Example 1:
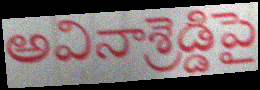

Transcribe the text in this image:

అవినాశ్రెడ్డిపై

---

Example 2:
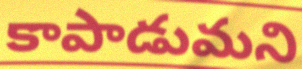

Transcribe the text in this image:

కాపాడుమని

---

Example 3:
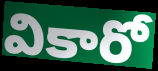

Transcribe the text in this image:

వికారో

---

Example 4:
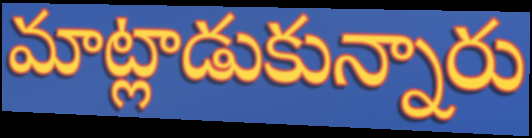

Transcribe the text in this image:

మాట్లాడుకున్నారు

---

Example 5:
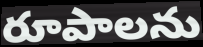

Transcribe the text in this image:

రూపాలను